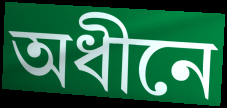
অধীনে